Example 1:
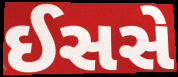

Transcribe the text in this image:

ઈસસે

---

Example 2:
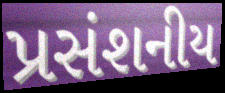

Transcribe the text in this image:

પ્રસંશનીય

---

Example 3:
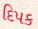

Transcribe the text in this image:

દિપક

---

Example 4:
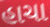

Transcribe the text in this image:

હાચા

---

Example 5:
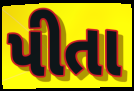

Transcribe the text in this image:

પીતા